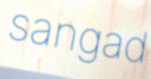
sangad